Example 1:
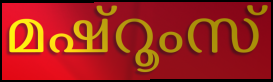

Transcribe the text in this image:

മഷ്റൂംസ്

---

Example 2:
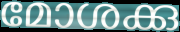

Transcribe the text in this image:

മോശക്കു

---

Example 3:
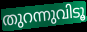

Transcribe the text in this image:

തുറന്നുവിടൂ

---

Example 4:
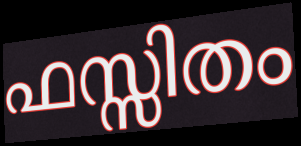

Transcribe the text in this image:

ഫസ്സിതം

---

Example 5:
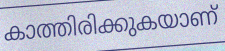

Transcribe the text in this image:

കാത്തിരിക്കുകയാണ്